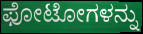
ಫೋಟೋಗಳನ್ನು